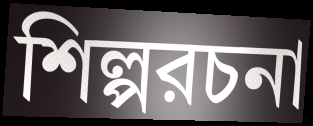
শিল্পরচনা